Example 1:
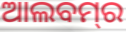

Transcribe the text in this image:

ଆଲବମ୍‌ର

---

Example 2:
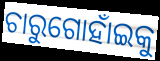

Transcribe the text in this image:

ଚାରୁଗୋହାଁଇକୁ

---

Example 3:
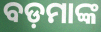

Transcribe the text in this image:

ବଡ଼ମାଙ୍କ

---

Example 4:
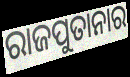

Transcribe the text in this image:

ରାଜପୁତାନାର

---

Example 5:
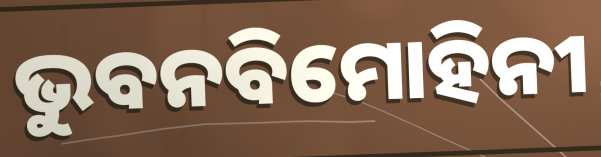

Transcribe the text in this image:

ଭୁବନବିମୋହିନୀ